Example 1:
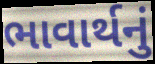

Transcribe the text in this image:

ભાવાર્થનું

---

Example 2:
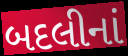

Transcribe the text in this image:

બદલીનાં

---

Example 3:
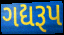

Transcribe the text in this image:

ગદ્યરૂપ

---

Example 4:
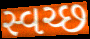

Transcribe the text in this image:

સ્વચ્છ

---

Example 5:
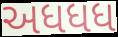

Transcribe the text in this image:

અધધધ